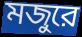
মজুরে